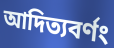
আদিত্যবর্ণং